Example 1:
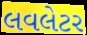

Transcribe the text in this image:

લવલેટર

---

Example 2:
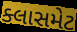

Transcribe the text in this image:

ક્લાસમેટ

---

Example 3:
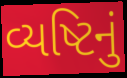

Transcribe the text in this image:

વ્યષ્ટિનું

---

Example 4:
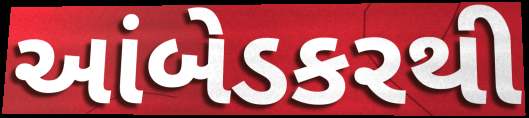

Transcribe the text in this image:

આંબેડકરથી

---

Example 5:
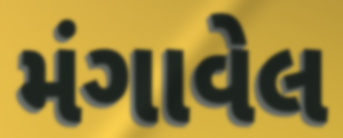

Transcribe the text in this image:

મંગાવેલ